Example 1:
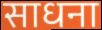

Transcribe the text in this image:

साधना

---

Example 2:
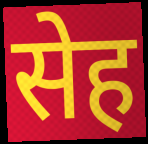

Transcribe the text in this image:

सेह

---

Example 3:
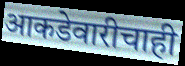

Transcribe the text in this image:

आकडेवारीचाही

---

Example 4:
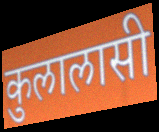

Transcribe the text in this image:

कुलालासी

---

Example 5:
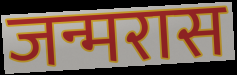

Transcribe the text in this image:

जन्मरास